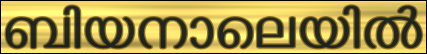
ബിയനാലെയിൽ